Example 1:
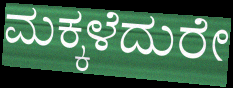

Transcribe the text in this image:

ಮಕ್ಕಳೆದುರೇ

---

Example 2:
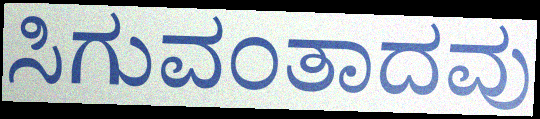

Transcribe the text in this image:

ಸಿಗುವಂತಾದವು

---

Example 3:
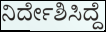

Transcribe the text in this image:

ನಿರ್ದೇಶಿಸಿದ್ದೆ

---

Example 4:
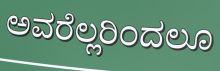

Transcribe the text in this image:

ಅವರೆಲ್ಲರಿಂದಲೂ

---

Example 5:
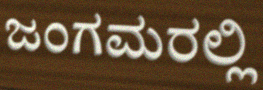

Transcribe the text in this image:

ಜಂಗಮರಲ್ಲಿ